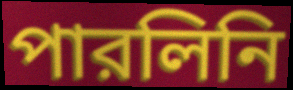
পারলিনি